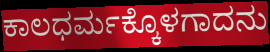
ಕಾಲಧರ್ಮಕ್ಕೊಳಗಾದನು